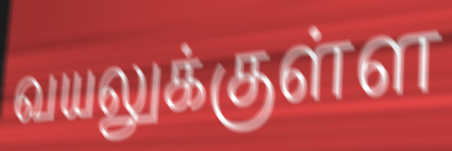
வயலுக்குள்ள